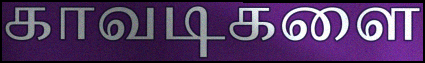
காவடிகளை